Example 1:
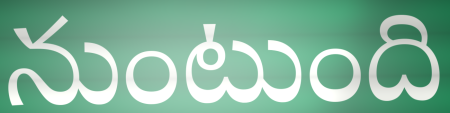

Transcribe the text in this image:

నుంటుంది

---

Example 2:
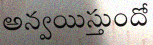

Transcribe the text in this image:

అన్వయిస్తుందో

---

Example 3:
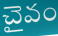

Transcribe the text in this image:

చైవం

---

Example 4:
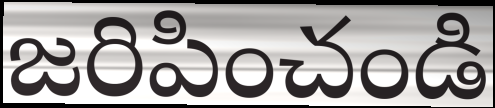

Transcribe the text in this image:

జరిపించండి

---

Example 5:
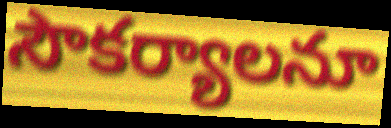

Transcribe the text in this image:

సౌకర్యాలనూ